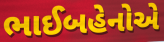
ભાઈબહેનોએ